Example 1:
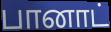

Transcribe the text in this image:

பானாட்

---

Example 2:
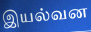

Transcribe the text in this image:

இயல்வன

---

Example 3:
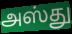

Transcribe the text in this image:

அஸ்து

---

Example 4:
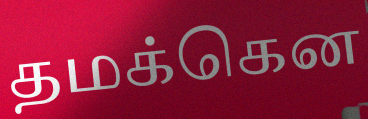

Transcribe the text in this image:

தமக்கென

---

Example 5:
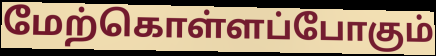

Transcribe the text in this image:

மேற்கொள்ளப்போகும்